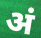
अं